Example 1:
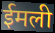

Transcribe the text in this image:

ईमली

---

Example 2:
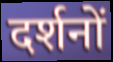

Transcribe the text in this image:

दर्शनों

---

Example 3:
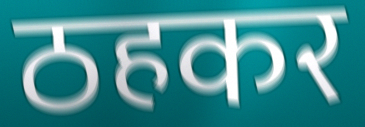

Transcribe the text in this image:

ठहकर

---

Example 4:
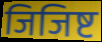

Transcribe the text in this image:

जिजिष्ट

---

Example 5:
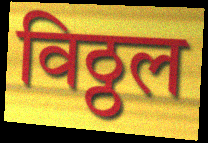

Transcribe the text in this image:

विठ्ठल